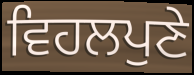
ਵਿਹਲਪੁਣੇ